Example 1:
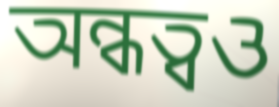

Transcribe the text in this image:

অন্ধত্বও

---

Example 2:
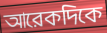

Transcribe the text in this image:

আরেকদিকে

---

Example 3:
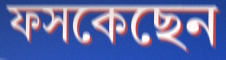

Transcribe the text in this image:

ফসকেছেন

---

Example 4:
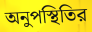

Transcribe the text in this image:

অনুপস্থিতির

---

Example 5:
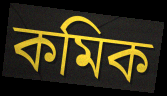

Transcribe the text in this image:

কমিক